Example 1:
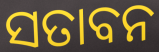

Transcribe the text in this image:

ସତାବନ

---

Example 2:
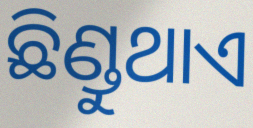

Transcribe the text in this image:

ଛିଣ୍ଡୁଥାଏ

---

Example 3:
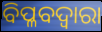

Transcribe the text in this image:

ବିପ୍ଳବଦ୍ୱାରା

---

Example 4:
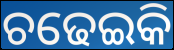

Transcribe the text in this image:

ଚଢେଇକି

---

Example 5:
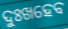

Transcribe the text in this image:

ଦୁଃଖହେବ